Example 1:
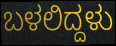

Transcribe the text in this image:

ಬಳಲಿದ್ದಳು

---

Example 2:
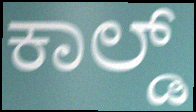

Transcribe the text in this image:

ಕಾಲ್ಡ್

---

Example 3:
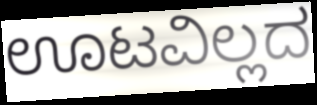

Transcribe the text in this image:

ಊಟವಿಲ್ಲದ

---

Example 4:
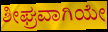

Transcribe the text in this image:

ಶೀಘ್ರವಾಗಿಯೇ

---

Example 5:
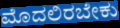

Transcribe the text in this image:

ಮೊದಲಿರಬೇಕು